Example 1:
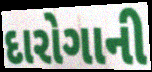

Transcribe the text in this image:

દારોગાની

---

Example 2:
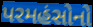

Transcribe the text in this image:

પરમહંસોનો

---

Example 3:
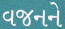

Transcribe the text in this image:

વજનને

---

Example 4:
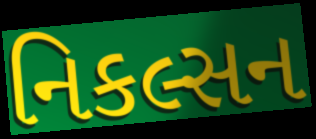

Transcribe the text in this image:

નિકલ્સન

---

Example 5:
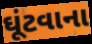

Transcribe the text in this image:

ઘૂંટવાના